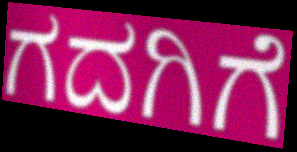
ಗದಗಿಗೆ